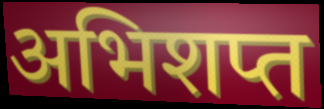
अभिशप्त